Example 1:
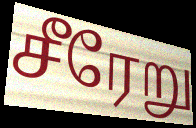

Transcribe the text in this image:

சீரேறு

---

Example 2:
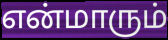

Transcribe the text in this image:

என்மாரும்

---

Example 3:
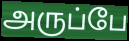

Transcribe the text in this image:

அருப்பே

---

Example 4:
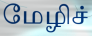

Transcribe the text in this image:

மேழிச்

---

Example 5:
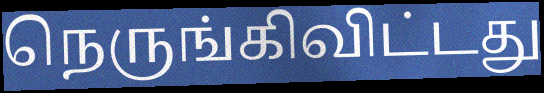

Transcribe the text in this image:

நெருங்கிவிட்டது